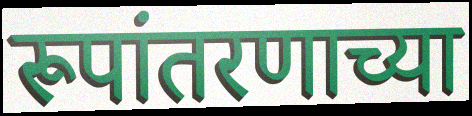
रूपांतरणाच्या